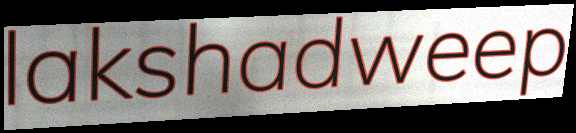
lakshadweep